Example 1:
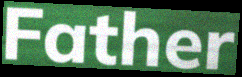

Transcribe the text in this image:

Father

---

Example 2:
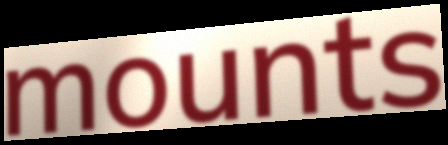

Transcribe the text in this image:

mounts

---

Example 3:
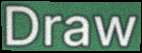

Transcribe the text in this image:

Draw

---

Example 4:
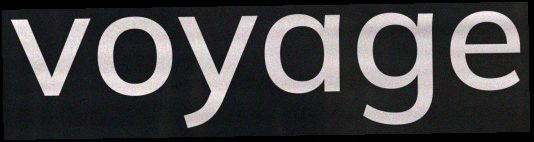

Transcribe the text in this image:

voyage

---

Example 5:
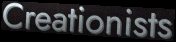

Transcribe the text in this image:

Creationists